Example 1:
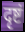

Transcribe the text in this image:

दृष्टं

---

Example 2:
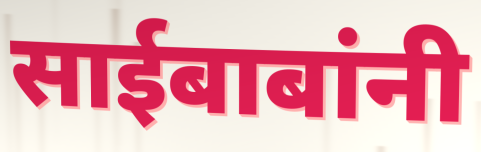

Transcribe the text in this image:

साईबाबांनी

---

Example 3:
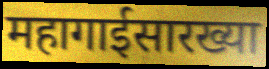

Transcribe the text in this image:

महागाईसारख्या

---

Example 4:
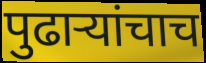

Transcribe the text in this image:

पुढाऱ्यांचाच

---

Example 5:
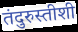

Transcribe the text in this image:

तंदुरुस्तीशी